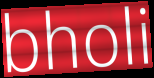
bholi